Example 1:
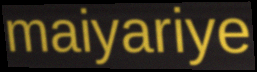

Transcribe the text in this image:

maiyariye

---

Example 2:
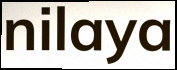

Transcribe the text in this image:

nilaya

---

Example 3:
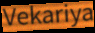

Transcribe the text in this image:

Vekariya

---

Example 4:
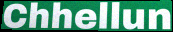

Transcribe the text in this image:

Chhellun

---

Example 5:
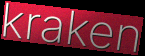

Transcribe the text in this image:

kraken